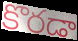
కొరడా